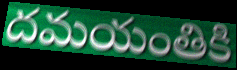
దమయంతికి